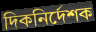
দিকনির্দেশক